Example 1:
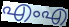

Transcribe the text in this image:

എംഎ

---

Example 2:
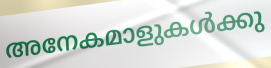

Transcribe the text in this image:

അനേകമാളുകൾക്കു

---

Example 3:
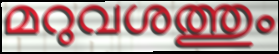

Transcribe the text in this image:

മറുവശത്തും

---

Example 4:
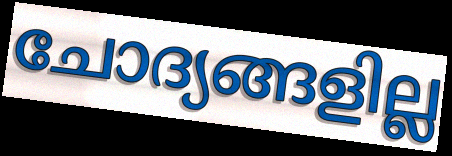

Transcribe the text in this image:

ചോദ്യങ്ങളില്ല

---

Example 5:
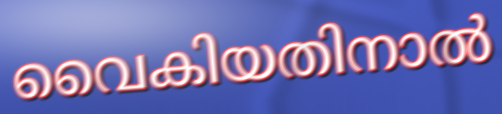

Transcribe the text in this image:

വൈകിയതിനാൽ